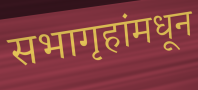
सभागृहांमधून